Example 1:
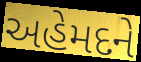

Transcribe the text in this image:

અહેમદને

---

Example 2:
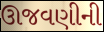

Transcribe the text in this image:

ઊજવણીની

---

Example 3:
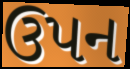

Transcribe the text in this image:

ઉપન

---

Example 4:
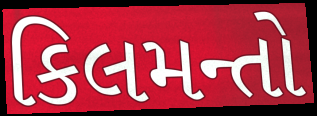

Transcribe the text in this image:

કિલમન્તો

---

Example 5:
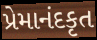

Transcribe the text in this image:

પ્રેમાનંદકૃત